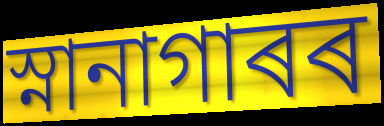
স্নানাগাৰৰ